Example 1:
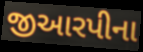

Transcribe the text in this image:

જીઆરપીના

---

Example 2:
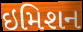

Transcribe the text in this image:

ઇમિશન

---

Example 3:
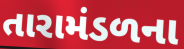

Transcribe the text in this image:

તારામંડળના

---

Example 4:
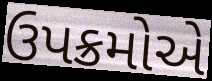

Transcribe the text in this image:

ઉપક્રમોએ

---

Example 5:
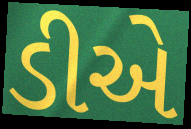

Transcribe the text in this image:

ડીએ